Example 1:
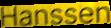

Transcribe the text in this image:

Hanssen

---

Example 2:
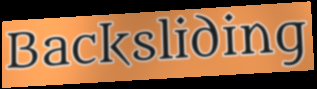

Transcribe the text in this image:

Backsliding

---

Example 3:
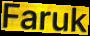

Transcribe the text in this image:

Faruk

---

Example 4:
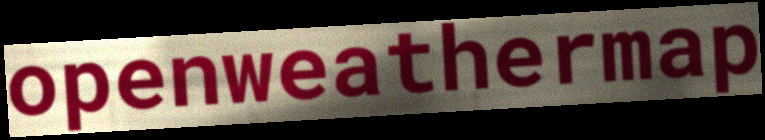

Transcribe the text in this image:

openweathermap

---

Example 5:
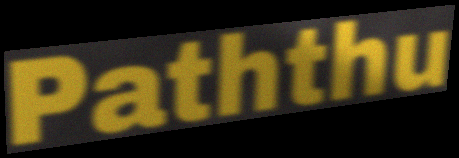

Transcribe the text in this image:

Paththu